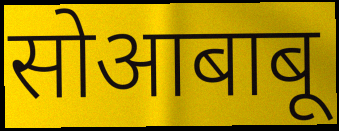
सोआबाबू